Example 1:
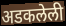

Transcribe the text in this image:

अडकलेली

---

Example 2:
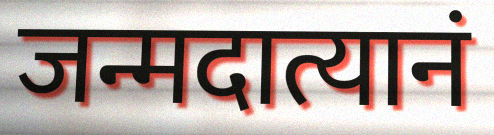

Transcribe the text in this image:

जन्मदात्यानं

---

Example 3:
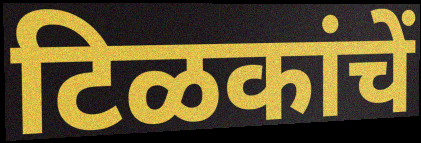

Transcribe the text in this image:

टिळकांचें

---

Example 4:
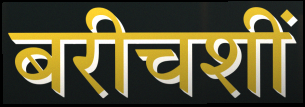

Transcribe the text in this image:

बरीचशीं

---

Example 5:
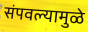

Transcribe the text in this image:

संपवल्यामुळे